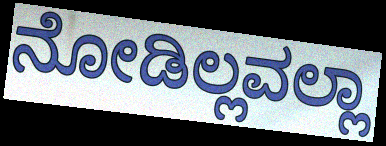
ನೋಡಿಲ್ಲವಲ್ಲಾ